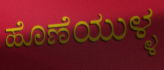
ಹೊಣೆಯುಳ್ಳ